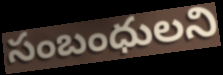
సంబంధులని